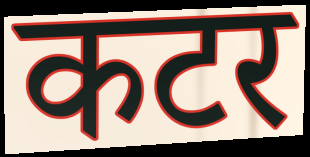
कटर